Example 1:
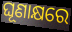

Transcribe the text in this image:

ଘୂଣାକ୍ଷରେ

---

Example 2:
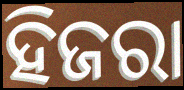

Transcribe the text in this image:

ହିଜରା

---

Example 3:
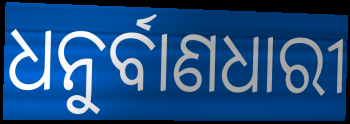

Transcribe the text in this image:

ଧନୁର୍ବାଣଧାରୀ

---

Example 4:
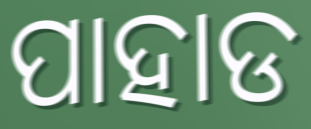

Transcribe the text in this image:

ପାହାଡ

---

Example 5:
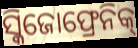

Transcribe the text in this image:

ସ୍କିଜୋଫ୍ରେନିକ୍